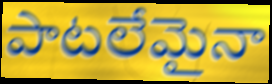
పాటలేమైనా